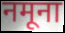
नमूना